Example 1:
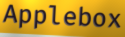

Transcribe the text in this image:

Applebox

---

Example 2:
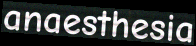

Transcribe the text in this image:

anaesthesia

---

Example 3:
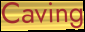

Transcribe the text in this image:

Caving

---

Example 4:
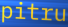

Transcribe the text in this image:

pitru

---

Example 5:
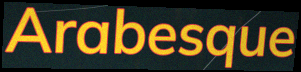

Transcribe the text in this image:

Arabesque